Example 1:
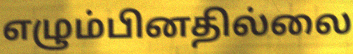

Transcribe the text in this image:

எழும்பினதில்லை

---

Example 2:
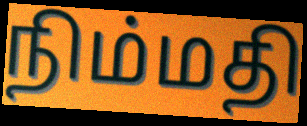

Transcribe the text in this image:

நிம்மதி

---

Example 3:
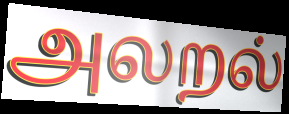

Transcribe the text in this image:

அலறல்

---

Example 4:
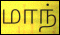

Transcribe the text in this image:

மாந்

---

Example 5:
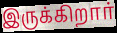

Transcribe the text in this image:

இருக்கிறார்